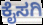
ಕೈಸಗಿ